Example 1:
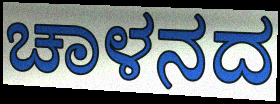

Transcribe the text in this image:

ಚಾಳನದ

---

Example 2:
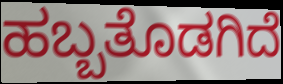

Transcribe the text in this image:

ಹಬ್ಬತೊಡಗಿದೆ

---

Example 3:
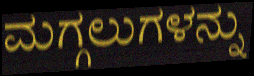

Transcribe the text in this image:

ಮಗ್ಗಲುಗಳನ್ನು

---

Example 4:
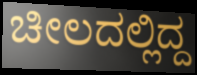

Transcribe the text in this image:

ಚೀಲದಲ್ಲಿದ್ದ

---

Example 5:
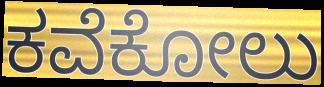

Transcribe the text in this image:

ಕವೆಕೋಲು